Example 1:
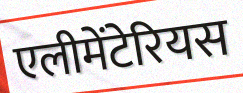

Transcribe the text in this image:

एलीमेंटेरियस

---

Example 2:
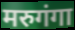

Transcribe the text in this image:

मरुगंगा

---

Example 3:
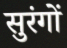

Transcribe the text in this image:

सुरंगों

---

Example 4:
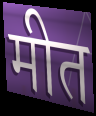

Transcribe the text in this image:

मीत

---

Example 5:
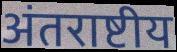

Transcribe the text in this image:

अंतराष्टीय